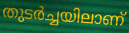
തുടർച്ചയിലാണ്